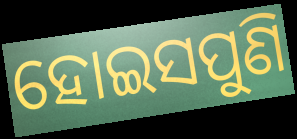
ହୋଇସପୁଣି